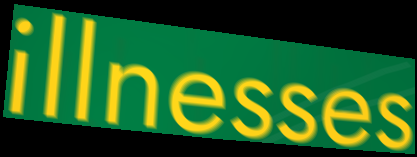
illnesses